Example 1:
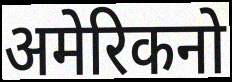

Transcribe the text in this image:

अमेरिकनो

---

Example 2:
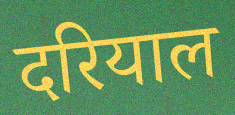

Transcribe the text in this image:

दरियाल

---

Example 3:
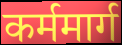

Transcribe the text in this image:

कर्ममार्ग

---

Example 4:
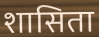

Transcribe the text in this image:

शासिता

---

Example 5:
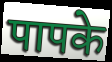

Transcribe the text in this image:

पापके